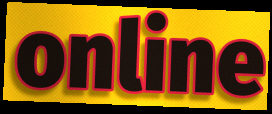
online